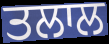
ਤਲਾਲ